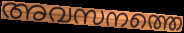
അവസനത്തെ